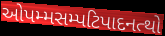
ઓપમ્મસમ્પટિપાદનત્થો